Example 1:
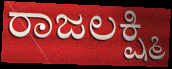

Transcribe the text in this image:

ರಾಜಲಕ್ಷ್ಮಿ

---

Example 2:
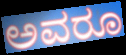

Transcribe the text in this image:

ಅವರೂ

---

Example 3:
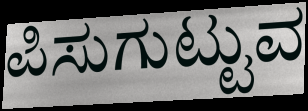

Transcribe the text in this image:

ಪಿಸುಗುಟ್ಟುವ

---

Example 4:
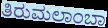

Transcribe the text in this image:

ತಿರುಮಲಾಂಬಾ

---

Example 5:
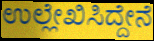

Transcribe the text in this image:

ಉಲ್ಲೇಖಿಸಿದ್ದೇನೆ